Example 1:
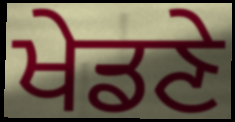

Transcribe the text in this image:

ਖੇਡਣੇ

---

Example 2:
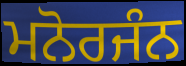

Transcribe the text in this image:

ਮਨੋਰਜੰਨ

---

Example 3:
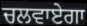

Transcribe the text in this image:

ਚਲਵਾਏਗਾ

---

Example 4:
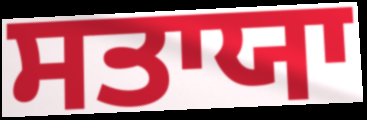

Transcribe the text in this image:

ਸਤਾਯਾ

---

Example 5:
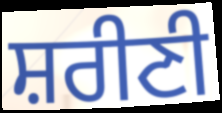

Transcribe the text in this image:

ਸ਼ਰੀਣੀ